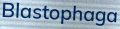
Blastophaga